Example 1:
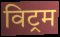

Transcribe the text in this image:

विट्रम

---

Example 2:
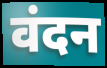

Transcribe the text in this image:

वंदन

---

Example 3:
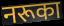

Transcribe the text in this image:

नरूका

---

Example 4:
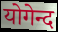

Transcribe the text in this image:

योगेन्द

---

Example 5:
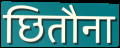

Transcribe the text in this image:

छितौना